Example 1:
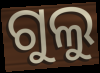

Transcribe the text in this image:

ଗୁଲୁ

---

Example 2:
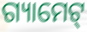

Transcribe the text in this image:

ଗ୍ୟାମେଟ୍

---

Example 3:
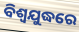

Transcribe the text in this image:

ବିଶ୍ବଯୁଦ୍ଧରେ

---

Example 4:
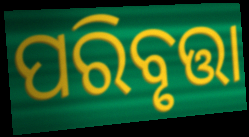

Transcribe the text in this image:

ପରିବୃତ୍ତା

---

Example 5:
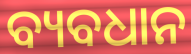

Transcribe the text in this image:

ବ୍ୟବଧାନ